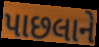
પાછલાને